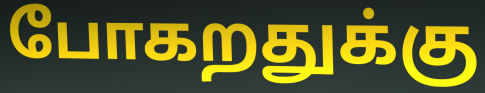
போகறதுக்கு